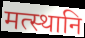
मत्स्थानि